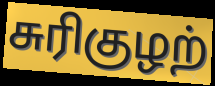
சுரிகுழற்